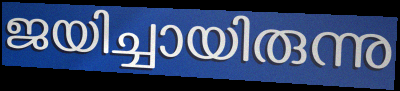
ജയിച്ചായിരുന്നു